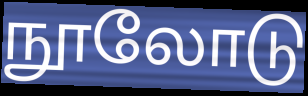
நூலோடு